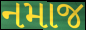
નમાજ